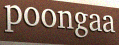
poongaa